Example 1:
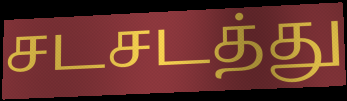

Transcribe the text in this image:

சடசடத்து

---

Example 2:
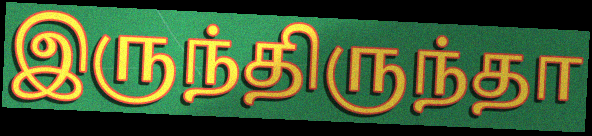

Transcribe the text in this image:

இருந்திருந்தா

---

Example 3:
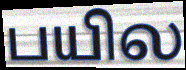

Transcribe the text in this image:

பயில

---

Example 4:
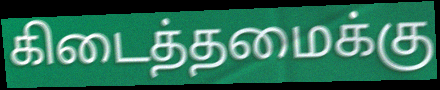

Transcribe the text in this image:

கிடைத்தமைக்கு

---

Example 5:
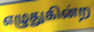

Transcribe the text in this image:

எழுதுகின்ற